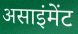
असाइंमेंट